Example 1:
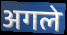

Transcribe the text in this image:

अगले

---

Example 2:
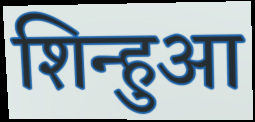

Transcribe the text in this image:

शिन्हुआ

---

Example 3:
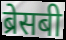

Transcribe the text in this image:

ब्रेसबी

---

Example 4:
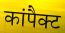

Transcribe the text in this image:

कांपैक्ट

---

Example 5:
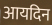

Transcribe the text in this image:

आयदिन